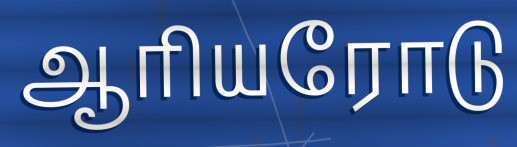
ஆரியரோடு